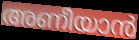
അണീയാൻ